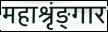
महाश्रृंङ्गार